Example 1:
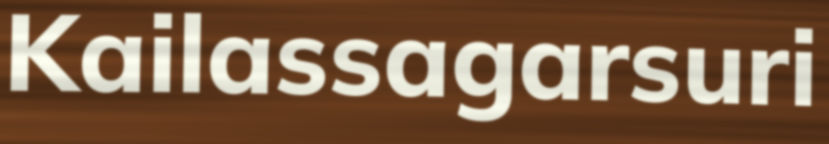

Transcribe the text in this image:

Kailassagarsuri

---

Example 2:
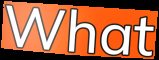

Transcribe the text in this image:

What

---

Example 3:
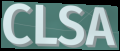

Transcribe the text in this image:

CLSA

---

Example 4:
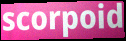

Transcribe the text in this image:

scorpoid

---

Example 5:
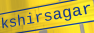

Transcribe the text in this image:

kshirsagar